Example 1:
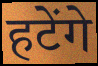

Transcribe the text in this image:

हटेंगे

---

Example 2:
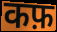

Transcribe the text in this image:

कफ़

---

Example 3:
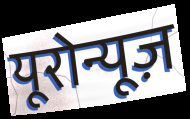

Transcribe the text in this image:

यूरोन्यूज़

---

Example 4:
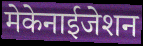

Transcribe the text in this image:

मेकेनाईजेशन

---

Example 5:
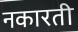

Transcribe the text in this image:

नकारती